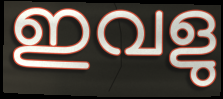
ഇവളു